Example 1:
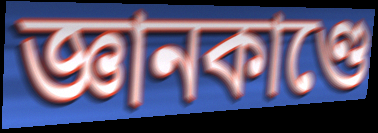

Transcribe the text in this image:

জ্ঞানকাণ্ডে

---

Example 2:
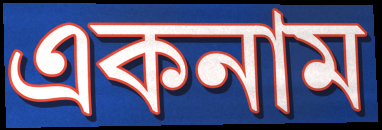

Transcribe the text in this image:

একনাম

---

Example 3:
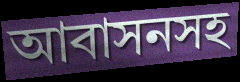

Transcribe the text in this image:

আবাসনসহ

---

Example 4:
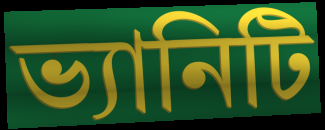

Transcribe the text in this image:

ভ্যানিটি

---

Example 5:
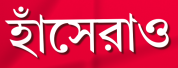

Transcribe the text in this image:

হাঁসেরাও